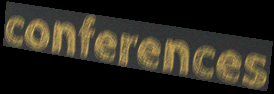
conferences